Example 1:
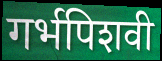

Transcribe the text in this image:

गर्भपिशवी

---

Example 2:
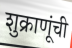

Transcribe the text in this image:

शुक्राणूंची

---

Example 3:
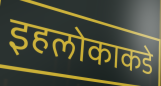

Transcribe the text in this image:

इहलोकाकडे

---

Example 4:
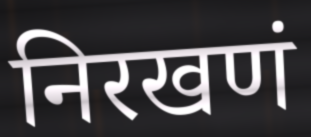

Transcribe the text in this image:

निरखणं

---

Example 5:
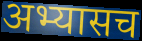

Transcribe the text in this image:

अभ्यासच